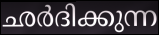
ഛർദിക്കുന്ന